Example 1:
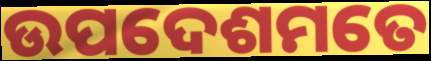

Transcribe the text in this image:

ଉପଦେଶମତେ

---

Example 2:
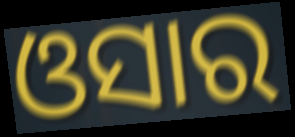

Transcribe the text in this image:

ଓସାର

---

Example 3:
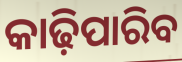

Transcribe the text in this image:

କାଢ଼ିପାରିବ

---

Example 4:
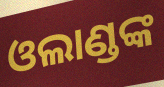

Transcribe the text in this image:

ଓଲାଣ୍ଡଙ୍କ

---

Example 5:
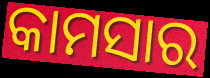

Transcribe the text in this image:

କାମସାର